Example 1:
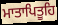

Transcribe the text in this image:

ਮਾਤਾਪਿਤੂਹਿ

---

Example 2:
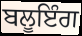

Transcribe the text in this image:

ਬਲੂਇੰਗ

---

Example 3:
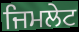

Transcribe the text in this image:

ਜਿਮਲੇਟ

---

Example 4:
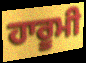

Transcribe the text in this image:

ਹਾਰੂਮੀ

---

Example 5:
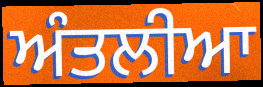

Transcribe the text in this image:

ਅੰਤਲੀਆ